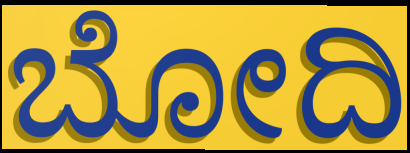
ಬೋದಿ